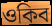
ওকিব